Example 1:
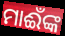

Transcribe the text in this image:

ମାଈଁଙ୍କ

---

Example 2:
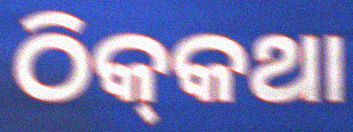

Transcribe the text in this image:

ଠିକ୍‌କଥା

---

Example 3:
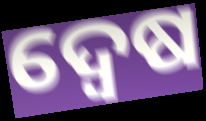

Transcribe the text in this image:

ଦ୍ବେଷ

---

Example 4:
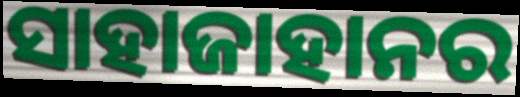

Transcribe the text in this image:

ସାହାଜାହାନର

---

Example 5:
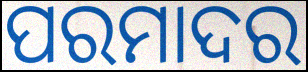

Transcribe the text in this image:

ପରମାଦର